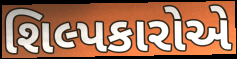
શિલ્પકારોએ